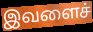
இவளைச்